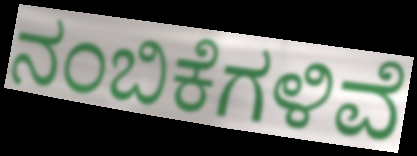
ನಂಬಿಕೆಗಳಿವೆ